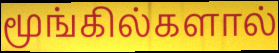
மூங்கில்களால்